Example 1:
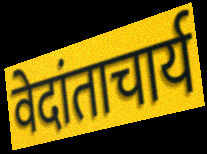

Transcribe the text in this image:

वेदांताचार्य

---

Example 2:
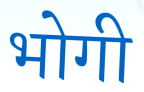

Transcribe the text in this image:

भोगी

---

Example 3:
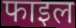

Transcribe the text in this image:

फाइल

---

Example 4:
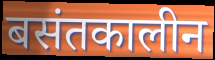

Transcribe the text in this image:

बसंतकालीन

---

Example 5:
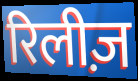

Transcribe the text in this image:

रिलीज़